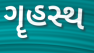
ગૄહસ્થ